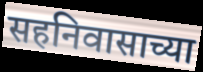
सहनिवासाच्या